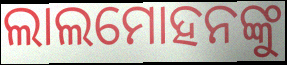
ଲାଲମୋହନଙ୍କୁ